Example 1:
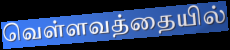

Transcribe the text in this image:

வெள்ளவத்தையில்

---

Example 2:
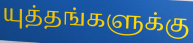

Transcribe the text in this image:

யுத்தங்களுக்கு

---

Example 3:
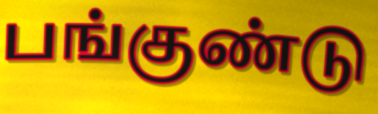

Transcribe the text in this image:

பங்குண்டு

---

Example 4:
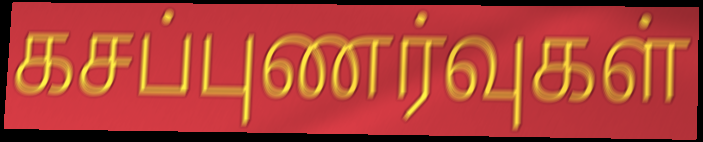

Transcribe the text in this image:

கசப்புணர்வுகள்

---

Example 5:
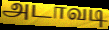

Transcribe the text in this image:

அடாவடி